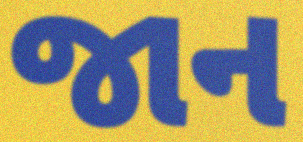
જાન